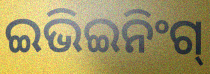
ଇଭିଇନିଂଗ୍